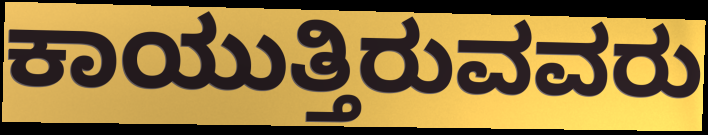
ಕಾಯುತ್ತಿರುವವರು